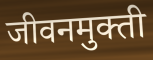
जीवनमुक्ती